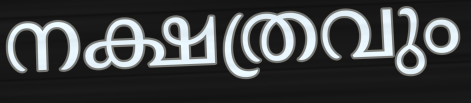
നക്ഷത്രവും